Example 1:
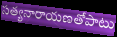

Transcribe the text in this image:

సత్యనారాయణతోపాటు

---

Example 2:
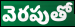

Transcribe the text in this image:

వెరపుతో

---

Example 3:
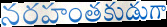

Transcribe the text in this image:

నరహంతకుడుగా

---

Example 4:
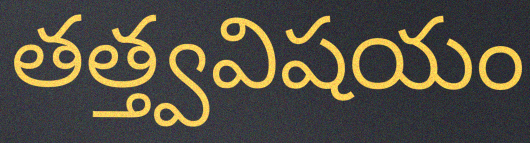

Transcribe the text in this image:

తత్త్వవిషయం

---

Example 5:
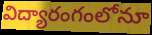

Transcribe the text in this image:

విద్యారంగంలోనూ